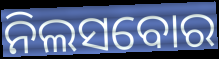
ନିଲସବୋର